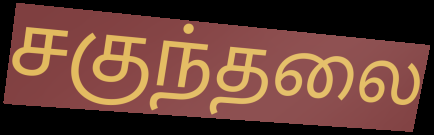
சகுந்தலை